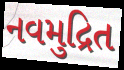
નવમુદ્રિત